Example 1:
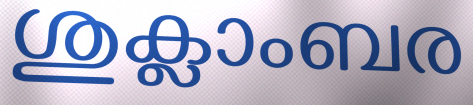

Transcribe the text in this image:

ശുക്ലാംബര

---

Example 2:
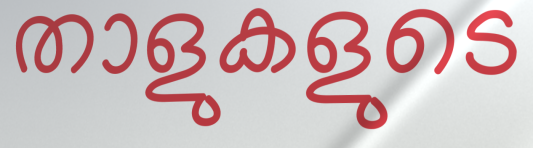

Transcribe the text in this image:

താളുകളുടെ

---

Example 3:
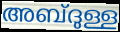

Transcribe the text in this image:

അബ്ദുള്ള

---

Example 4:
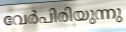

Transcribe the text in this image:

വേർപിരിയുന്നു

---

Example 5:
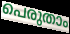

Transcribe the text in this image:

പെരുതാം